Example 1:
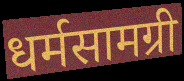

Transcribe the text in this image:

धर्मसामग्री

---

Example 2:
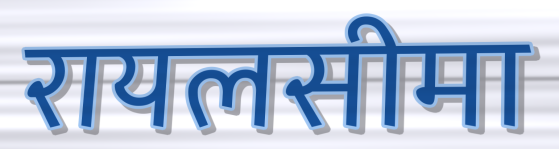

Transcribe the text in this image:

रायलसीमा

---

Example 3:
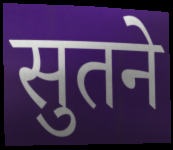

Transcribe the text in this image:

सुतने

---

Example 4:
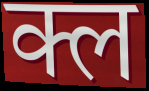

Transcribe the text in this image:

क्ल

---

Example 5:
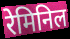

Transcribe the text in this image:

रेमिनिल